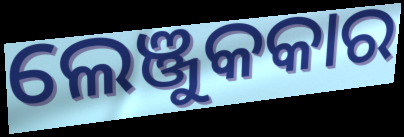
ଲେଞ୍ଜୁକକାର